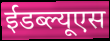
ईडब्ल्यूएस